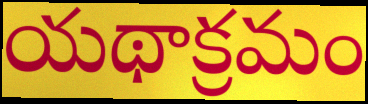
యథాక్రమం